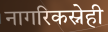
नागरिकस्नेही